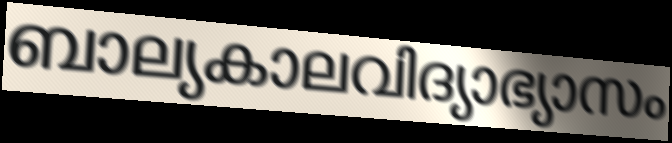
ബാല്യകാലവിദ്യാഭ്യാസം